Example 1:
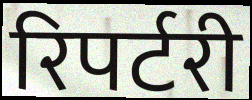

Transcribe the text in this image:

रिपर्टरी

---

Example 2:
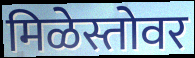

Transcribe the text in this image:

मिळेस्तोवर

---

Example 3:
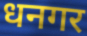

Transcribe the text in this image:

धनगर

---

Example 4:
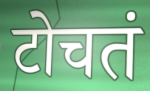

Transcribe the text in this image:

टोचतं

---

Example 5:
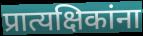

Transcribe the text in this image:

प्रात्यक्षिकांना